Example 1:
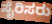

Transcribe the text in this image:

ಸೈರಿಸರು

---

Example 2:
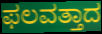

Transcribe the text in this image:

ಫಲವತ್ತಾದ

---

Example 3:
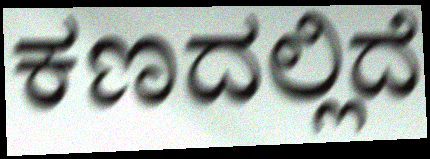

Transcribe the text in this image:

ಕಣದಲ್ಲಿದೆ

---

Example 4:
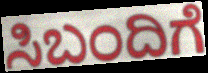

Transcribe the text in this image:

ಸಿಬಂದಿಗೆ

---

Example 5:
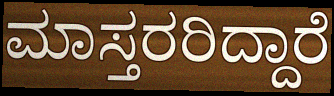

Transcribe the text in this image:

ಮಾಸ್ತರರಿದ್ದಾರೆ